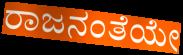
ರಾಜನಂತೆಯೇ